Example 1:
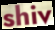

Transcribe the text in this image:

shiv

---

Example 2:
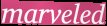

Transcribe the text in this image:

marveled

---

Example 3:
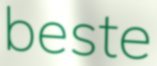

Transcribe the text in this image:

beste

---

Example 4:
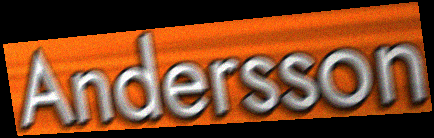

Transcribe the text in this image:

Andersson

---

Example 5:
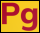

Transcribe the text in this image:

Pg